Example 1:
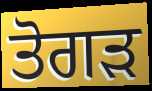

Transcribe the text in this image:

ਤੋਗੜ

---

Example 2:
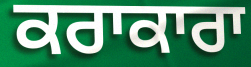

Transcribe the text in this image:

ਕਰਾਕਾਰਾ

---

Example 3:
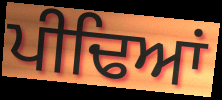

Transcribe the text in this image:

ਪੀਢਿਆਂ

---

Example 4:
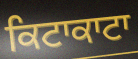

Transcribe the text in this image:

ਕਿਟਾਕਾਟਾ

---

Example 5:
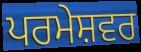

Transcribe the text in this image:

ਪਰਮੇਸ਼ਵਰ